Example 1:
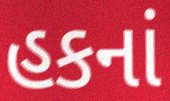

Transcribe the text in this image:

હકનાં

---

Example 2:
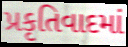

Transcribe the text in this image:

પ્રકૃતિવાદમાં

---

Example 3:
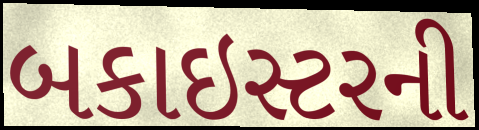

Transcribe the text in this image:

બકાઇસ્ટરની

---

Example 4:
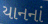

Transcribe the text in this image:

યાનનાં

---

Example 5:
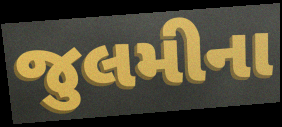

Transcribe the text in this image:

જુલમીના